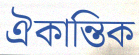
ঐকান্তিক